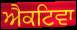
ਐਕਟਿਵਾ